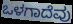
ಒಳಗಾದೆವು